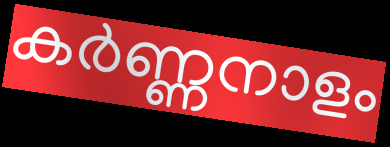
കർണ്ണനാളം